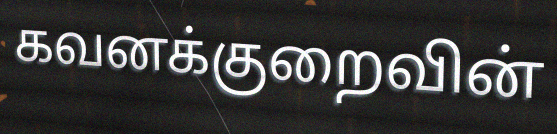
கவனக்குறைவின்